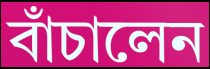
বাঁচালেন